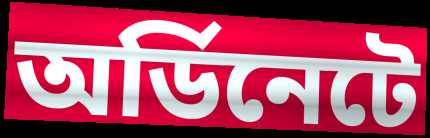
অর্ডিনেটে